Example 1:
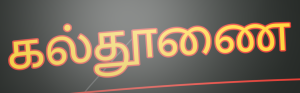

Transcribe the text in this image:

கல்தூணை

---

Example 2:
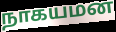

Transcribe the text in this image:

நாகயமன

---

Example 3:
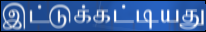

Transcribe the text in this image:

இட்டுக்கட்டியது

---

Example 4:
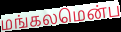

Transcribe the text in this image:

மங்கலமென்ப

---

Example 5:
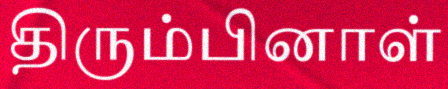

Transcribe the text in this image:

திரும்பினாள்